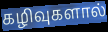
கழிவுகளால்